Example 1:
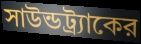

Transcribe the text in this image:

সাউন্ডট্র্যাকের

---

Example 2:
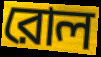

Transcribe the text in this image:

রোল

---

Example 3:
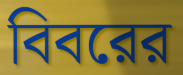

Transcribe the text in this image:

বিবরের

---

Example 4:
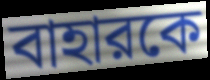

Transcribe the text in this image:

বাহারকে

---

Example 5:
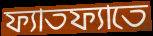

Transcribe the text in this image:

ফ্যাতফ্যাতে